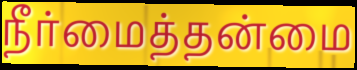
நீர்மைத்தன்மை